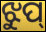
ଝୁପ୍